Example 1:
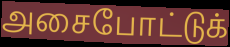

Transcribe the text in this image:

அசைபோட்டுக்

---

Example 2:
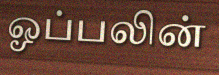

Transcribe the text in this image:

ஓப்பலின்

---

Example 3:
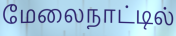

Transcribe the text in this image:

மேலைநாட்டில்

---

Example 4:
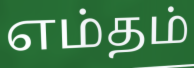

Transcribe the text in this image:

எம்தம்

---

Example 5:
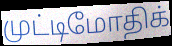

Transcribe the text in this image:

முட்டிமோதிக்